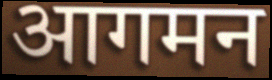
आगमन